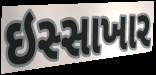
ઇસ્સાખાર